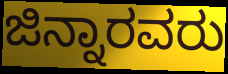
ಜಿನ್ನಾರವರು